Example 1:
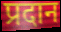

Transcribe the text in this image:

प्रदान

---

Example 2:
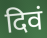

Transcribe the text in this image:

दिवं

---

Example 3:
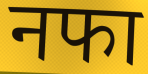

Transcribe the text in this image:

नफा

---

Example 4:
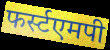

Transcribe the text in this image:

फर्स्टएमपी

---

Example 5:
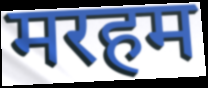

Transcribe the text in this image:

मरहम